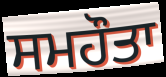
ਸਮਹੌਤਾ